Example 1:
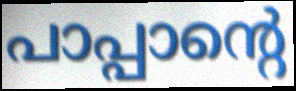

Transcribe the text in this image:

പാപ്പാന്റെ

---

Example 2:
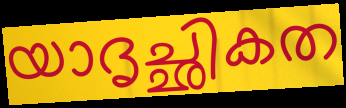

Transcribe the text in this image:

യാദൃച്ഛികത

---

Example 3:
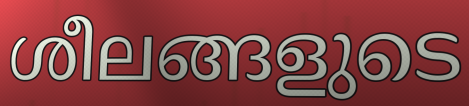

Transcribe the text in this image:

ശീലങ്ങളുടെ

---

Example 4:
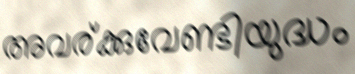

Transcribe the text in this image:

അവര്ക്കുവേണ്ടിയുദ്ധം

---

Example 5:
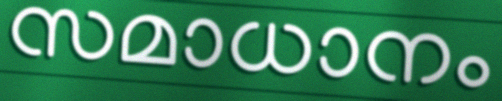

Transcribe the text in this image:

സമാധാനം